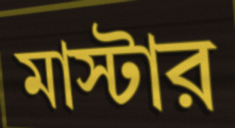
মাস্টার